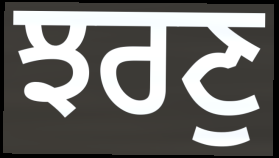
ਝਰਣੁ